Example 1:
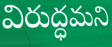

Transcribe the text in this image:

విరుద్ధమని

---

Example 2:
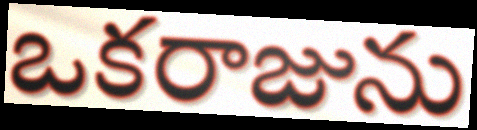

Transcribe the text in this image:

ఒకరాజును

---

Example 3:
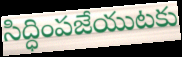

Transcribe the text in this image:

సిద్ధింపజేయుటకు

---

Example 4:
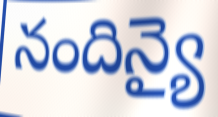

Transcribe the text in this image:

నందిన్యై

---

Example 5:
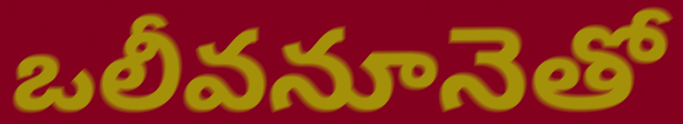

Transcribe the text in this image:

ఒలీవనూనెతో